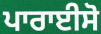
ਪਾਰਾਈਸੋ